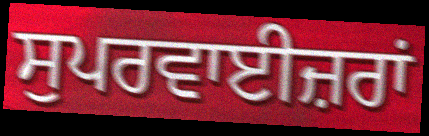
ਸੁਪਰਵਾਈਜ਼ਰਾਂ